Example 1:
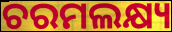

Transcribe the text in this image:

ଚରମଲକ୍ଷ୍ୟ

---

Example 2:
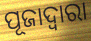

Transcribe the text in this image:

ପୂଜାଦ୍ଵାରା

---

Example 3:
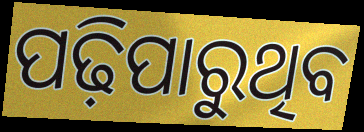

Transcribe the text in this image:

ପଢ଼ିପାରୁଥିବ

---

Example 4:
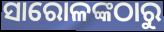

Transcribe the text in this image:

ସାରୋଳଙ୍କଠାରୁ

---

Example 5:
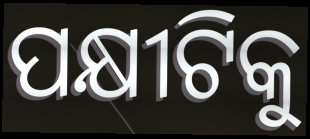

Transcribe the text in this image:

ପକ୍ଷୀଟିକୁ